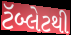
ટૅબ્લેટથી